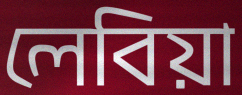
লেবিয়া